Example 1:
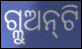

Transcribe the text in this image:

ଗ୍ଲୁଅନ୍‍ଟି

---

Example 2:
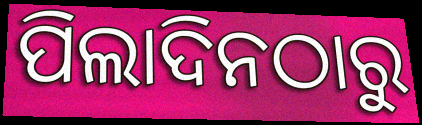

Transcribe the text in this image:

ପିଲାଦିନଠାରୁ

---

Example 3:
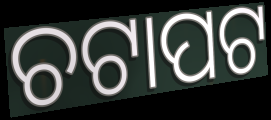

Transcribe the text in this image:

ଚଟାପଟ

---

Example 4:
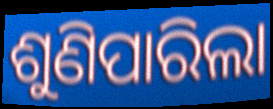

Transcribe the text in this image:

ଶୁଣିପାରିଲା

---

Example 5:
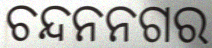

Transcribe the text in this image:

ଚନ୍ଦନନଗର